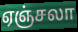
ஏஞ்சலா